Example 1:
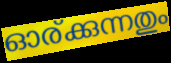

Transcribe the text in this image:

ഓര്ക്കുന്നതും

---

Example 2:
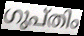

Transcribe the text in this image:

ഗുപ്തിം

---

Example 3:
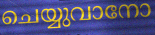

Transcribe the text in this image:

ചെയ്യുവാനോ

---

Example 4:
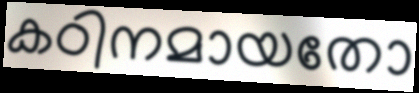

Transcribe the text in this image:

കഠിനമായതോ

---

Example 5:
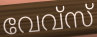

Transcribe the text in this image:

വേവ്സ്